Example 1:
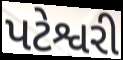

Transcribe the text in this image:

પટેશ્વરી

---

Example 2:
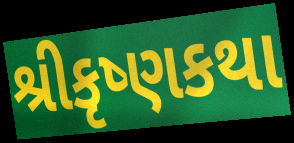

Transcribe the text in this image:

શ્રીકૃષ્ણકથા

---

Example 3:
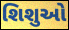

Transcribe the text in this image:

શિશુઓ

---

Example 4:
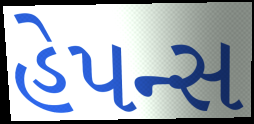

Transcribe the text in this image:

હેપન્સ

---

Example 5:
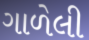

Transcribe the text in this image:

ગાળેલી